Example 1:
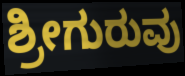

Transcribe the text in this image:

ಶ್ರೀಗುರುವು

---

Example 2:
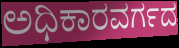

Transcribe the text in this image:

ಅಧಿಕಾರವರ್ಗದ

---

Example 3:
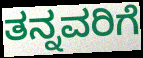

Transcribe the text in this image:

ತನ್ನವರಿಗೆ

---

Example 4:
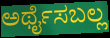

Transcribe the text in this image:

ಅರ್ಥೈಸಬಲ್ಲ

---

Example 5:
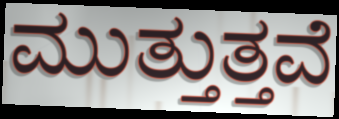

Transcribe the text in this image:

ಮುತ್ತುತ್ತವೆ